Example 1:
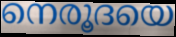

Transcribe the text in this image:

നെരൂദയെ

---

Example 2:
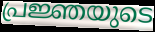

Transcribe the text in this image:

പ്രജ്ഞയുടെ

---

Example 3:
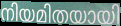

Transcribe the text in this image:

നിയമിതയായി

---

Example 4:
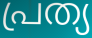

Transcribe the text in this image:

പ്രത്യ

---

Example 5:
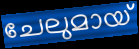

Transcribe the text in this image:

ചേലുമായ്